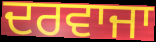
ਦਰਵਾਜਾ